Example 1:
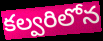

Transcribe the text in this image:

కల్వరిలోన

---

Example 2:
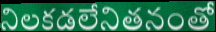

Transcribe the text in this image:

నిలకడలేనితనంతో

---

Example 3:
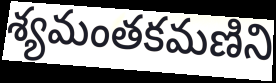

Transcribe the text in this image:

శ్యమంతకమణిని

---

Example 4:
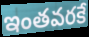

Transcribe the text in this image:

ఇంతవరకే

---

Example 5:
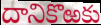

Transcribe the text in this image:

దానికొఱకు